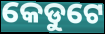
କେଡୁଟେ